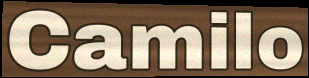
Camilo